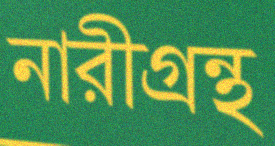
নারীগ্রন্থ